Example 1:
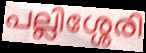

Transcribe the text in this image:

പല്ലിശ്ശേരി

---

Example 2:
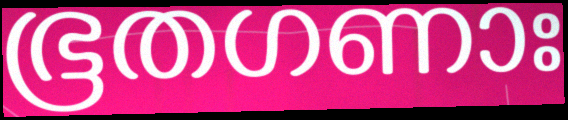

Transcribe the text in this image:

ഭൂതഗണാഃ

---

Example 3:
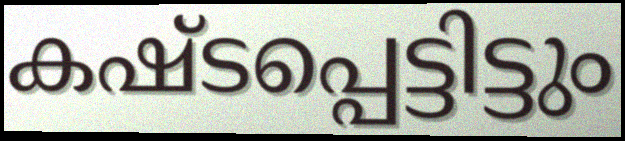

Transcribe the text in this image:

കഷ്ടപ്പെട്ടിട്ടും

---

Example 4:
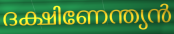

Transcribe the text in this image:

ദക്ഷിണേന്ത്യൻ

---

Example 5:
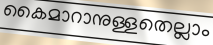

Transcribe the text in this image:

കൈമാറാനുള്ളതെല്ലാം